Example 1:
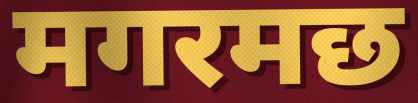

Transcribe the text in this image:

मगरमछ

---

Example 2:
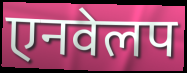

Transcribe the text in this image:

एनवेलप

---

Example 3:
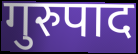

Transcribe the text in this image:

गुरुपाद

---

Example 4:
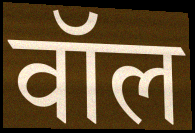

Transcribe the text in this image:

वॉल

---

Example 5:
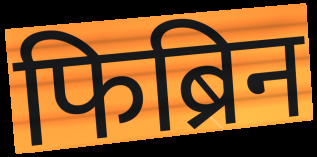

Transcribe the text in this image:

फिब्रिन